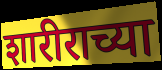
शारीराच्या